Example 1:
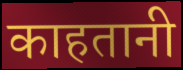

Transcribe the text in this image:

काहतानी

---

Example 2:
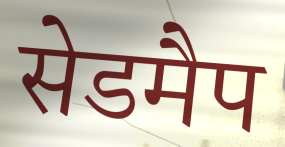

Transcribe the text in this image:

सेडमैप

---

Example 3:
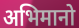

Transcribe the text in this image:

अभिमानो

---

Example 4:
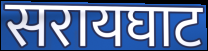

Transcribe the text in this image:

सरायघाट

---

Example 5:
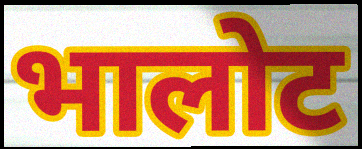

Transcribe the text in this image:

भालोट